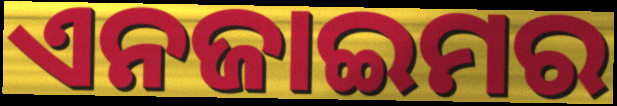
ଏନଜାଇମର